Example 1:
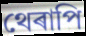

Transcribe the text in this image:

থেৰাপি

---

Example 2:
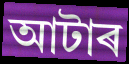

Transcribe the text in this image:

আটাৰ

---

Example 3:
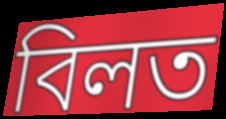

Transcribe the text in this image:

বিলত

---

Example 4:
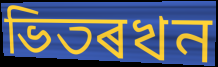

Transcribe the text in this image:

ভিতৰখন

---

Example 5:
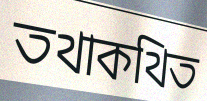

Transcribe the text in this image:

তথাকথিত